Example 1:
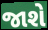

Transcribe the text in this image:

જાશે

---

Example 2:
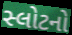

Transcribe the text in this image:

સ્લોટનો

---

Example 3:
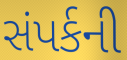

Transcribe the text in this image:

સંપર્કની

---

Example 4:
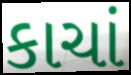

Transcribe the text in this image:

કાચાં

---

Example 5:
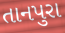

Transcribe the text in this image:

તાનપુરા